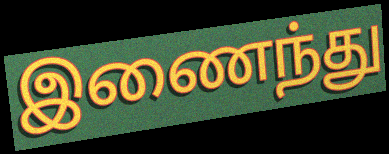
இணைந்து